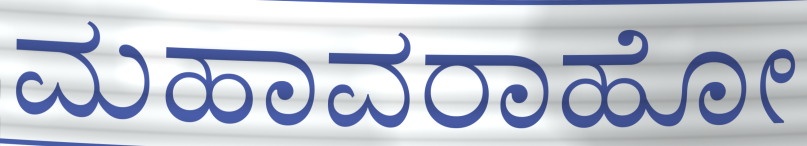
ಮಹಾವರಾಹೋ